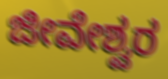
ಜೀವೇಶ್ವರ